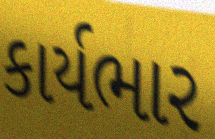
કાર્યભાર